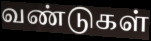
வண்டுகள்